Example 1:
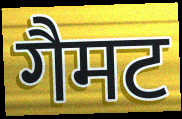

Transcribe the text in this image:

गैमट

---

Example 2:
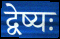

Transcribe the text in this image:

द्वेष्यः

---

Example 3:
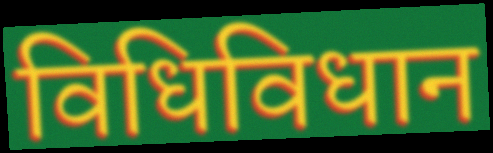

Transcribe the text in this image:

विधिविधान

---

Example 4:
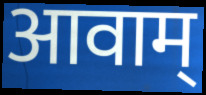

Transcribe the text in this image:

आवाम्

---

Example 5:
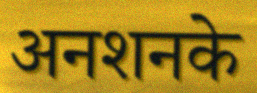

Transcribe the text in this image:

अनशनके